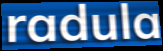
radula